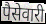
पैसेवारी